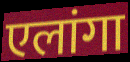
एलांगा